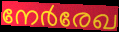
നേർരേഖ